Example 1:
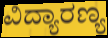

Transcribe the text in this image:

ವಿದ್ಯಾರಣ್ಯ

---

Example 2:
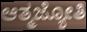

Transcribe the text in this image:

ಆತ್ಮಜ್ಯೋತಿ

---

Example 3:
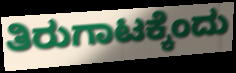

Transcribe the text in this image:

ತಿರುಗಾಟಕ್ಕೆಂದು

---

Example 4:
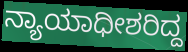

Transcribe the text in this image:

ನ್ಯಾಯಾಧೀಶರಿದ್ದ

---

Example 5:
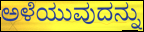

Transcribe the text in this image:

ಅಳೆಯುವುದನ್ನು